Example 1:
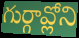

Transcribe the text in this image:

గుర్గావ్లోని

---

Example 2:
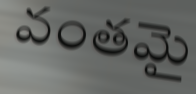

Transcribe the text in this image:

వంతమై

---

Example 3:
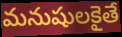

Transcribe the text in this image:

మనుషులకైతే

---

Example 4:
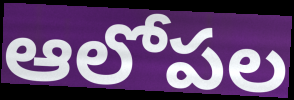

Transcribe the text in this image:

ఆలోపల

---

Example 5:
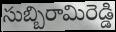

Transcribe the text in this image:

సుబ్బిరామిరెడ్డి